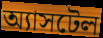
অ্যাসটেল